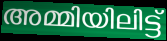
അമ്മിയിലിട്ട്